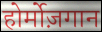
होर्मोज़गान